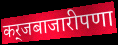
कर्जबाजारीपणा